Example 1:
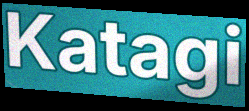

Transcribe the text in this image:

Katagi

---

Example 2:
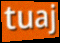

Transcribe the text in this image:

tuaj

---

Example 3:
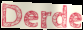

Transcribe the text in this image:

Derde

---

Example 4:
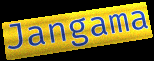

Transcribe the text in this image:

Jangama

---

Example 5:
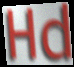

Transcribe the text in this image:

Hd